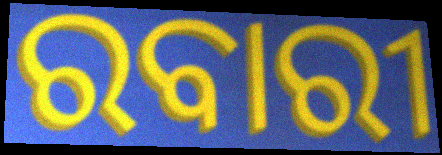
ରବାରୀ